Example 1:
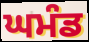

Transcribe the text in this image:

ਘਮੰਡ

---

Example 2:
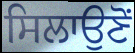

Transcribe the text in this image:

ਸਿਲਾਉਣੋਂ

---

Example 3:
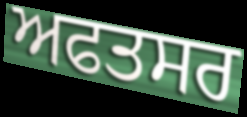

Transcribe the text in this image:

ਅਫਤਸਰ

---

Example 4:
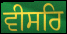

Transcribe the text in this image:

ਵੀਸਰਿ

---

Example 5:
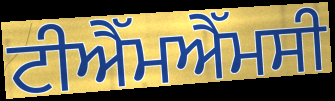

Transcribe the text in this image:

ਟੀਐੱਮਐੱਮਸੀ